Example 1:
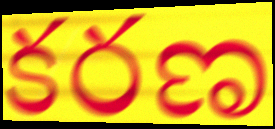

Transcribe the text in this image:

కరణ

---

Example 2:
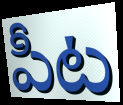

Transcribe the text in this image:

పీట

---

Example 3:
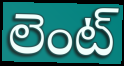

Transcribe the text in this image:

లెంట్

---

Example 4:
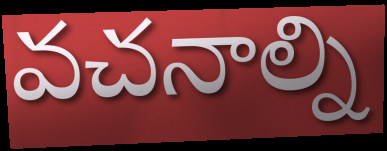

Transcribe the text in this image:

వచనాల్ని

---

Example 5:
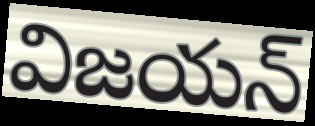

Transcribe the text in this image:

విజయన్